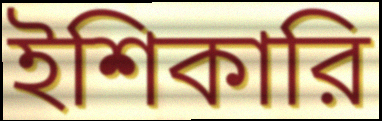
ইশিকারি